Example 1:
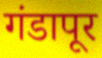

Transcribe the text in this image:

गंडापूर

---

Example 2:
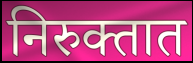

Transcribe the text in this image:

निरुक्तात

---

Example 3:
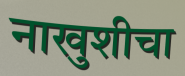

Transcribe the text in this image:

नाखुशीचा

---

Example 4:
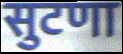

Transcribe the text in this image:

सुटणा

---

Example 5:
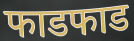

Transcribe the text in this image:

फाडफाड